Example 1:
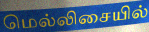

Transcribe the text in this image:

மெல்லிசையில்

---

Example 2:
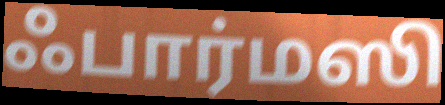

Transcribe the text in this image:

ஃபார்மஸி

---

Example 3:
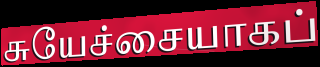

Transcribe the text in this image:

சுயேச்சையாகப்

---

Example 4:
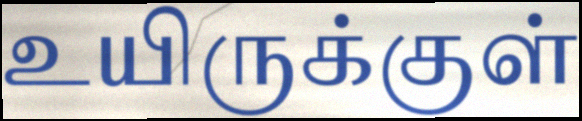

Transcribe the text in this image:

உயிருக்குள்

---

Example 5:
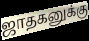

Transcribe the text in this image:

ஜாதகனுக்கு